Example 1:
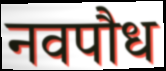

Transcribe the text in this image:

नवपौध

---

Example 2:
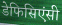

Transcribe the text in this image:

डेफिसिएंसी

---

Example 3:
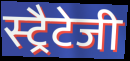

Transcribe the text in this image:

स्ट्रैटेजी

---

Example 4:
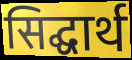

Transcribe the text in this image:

सिद्घार्थ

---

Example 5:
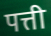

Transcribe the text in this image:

पत्ती